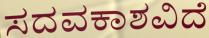
ಸದವಕಾಶವಿದೆ